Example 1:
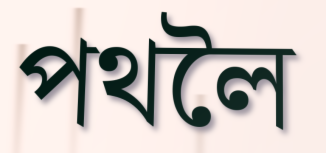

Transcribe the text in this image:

পথলৈ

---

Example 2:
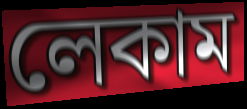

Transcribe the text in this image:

লেকাম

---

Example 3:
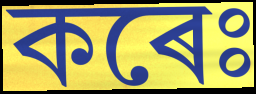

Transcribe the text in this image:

কৰেঃ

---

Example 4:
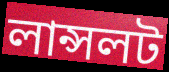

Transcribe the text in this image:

লান্সলট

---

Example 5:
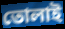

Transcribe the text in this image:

তোলাই